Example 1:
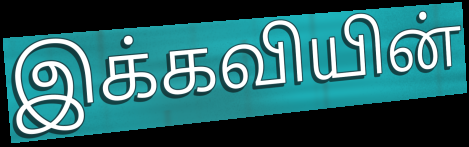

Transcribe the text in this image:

இக்கவியின்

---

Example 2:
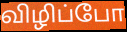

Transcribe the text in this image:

விழிப்போ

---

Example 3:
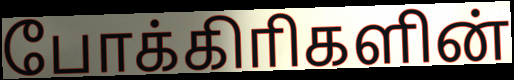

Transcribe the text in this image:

போக்கிரிகளின்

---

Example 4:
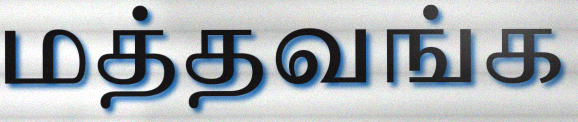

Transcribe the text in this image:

மத்தவங்க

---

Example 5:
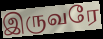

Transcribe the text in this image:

இருவரே